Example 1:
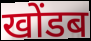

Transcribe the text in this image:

खोंडब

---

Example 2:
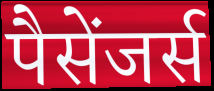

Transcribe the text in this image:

पैसेंजर्स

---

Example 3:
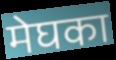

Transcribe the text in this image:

मेघका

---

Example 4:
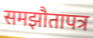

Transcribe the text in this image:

समझौतापत्र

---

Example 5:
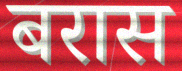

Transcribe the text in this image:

बरास